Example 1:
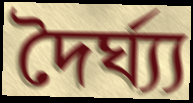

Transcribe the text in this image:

দৈৰ্ঘ্য্য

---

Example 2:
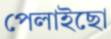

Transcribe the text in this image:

পেলাইছো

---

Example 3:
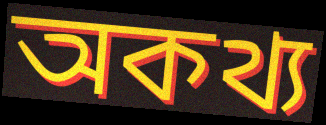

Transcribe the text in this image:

অকথ্য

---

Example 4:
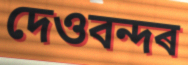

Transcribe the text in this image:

দেওবন্দৰ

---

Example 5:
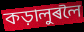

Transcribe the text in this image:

কড়ালুৰলৈ